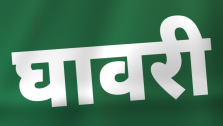
घावरी